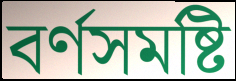
বৰ্ণসমষ্টি